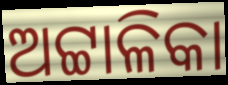
ଅଟ୍ଟାଳିକା